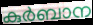
കുർബാന